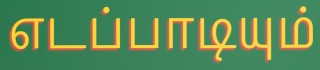
எடப்பாடியும்